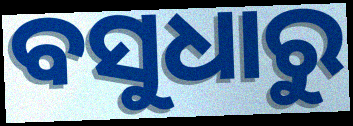
ବସୁଧାରୁ